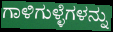
ಗಾಳಿಗುಳ್ಳೆಗಳನ್ನು